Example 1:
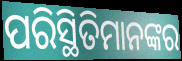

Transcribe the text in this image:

ପରିସ୍ଥିତିମାନଙ୍କର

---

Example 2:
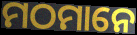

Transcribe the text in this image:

ମଠମାନେ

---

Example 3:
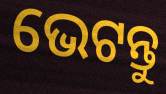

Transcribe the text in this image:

ଭେଟନ୍ତୁ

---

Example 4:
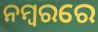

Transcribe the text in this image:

ନମ୍ବରରେ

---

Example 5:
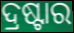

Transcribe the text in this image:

ଦ୍ରଷ୍ଟାର